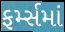
ફર્મ્સમાં